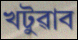
খটুৱাব